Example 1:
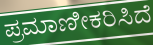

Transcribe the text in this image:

ಪ್ರಮಾಣೀಕರಿಸಿದೆ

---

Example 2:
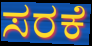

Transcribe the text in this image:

ಸರಕೆ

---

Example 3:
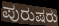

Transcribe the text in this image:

ಪುರುಷರು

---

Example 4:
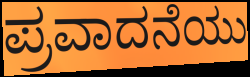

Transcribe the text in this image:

ಪ್ರವಾದನೆಯು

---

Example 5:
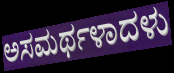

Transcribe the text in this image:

ಅಸಮರ್ಥಳಾದಳು